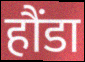
हौंडा